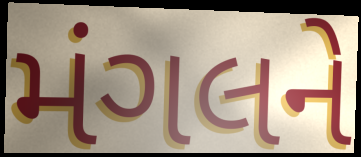
મંગલને